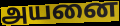
அயனை